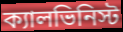
ক্যালভিনিস্ট